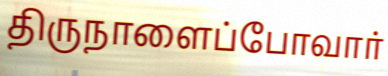
திருநாளைப்போவார்